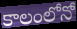
కాలంలోనో